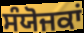
ਸੰਯੋਜਕਾਂ